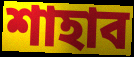
শাহাব